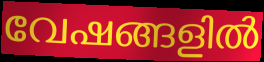
വേഷങ്ങളിൽ